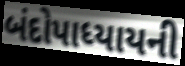
બંદોપાધ્યાયની